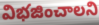
విభజించాలని